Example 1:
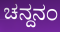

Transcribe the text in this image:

ಚನ್ದನಂ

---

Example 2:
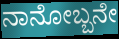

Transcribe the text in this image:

ನಾನೋಬ್ಬನೇ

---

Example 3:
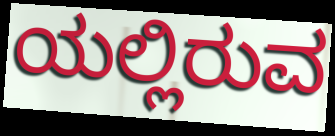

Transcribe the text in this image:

ಯಲ್ಲಿರುವ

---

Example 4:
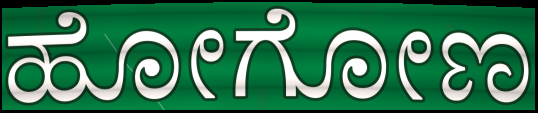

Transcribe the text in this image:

ಹೋಗೋಣ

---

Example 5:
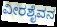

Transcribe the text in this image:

ವೀರಶೈವನ